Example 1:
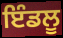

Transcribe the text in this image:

ਇੰਡਲੂ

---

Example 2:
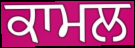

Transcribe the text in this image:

ਕਾਮਲ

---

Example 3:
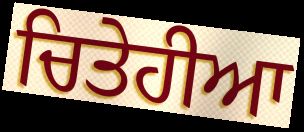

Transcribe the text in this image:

ਚਿਤੇਹੀਆ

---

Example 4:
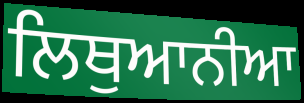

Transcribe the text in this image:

ਲਿਥੁਆਨੀਆ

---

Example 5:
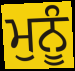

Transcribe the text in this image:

ਮੁਨੂੰ